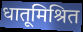
धातूमिश्रित